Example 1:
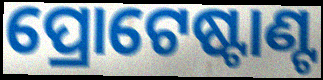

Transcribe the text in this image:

ପ୍ରୋଟେଷ୍ଟାଣ୍ଟ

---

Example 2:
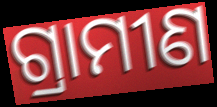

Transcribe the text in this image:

ଗ୍ରାମୀଣ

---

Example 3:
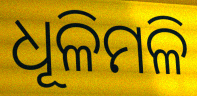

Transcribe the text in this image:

ଧୂଳିମଳି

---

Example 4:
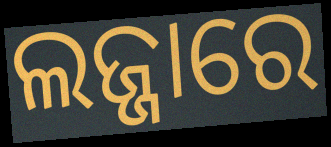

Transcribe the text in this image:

ଲଜ୍ଜାରେ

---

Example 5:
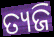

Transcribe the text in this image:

ତ୍ୟଜି